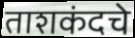
ताशकंदचे